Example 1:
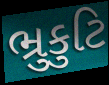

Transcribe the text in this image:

ભ્રુકુટિ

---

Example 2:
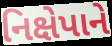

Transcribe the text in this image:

નિક્ષેપાને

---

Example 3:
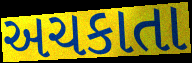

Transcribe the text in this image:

અચકાતા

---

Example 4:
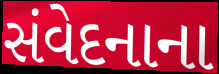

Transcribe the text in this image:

સંવેદનાના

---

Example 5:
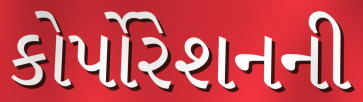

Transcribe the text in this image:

કોર્પોરેશનની